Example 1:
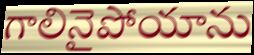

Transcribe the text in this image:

గాలినైపోయాను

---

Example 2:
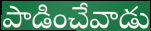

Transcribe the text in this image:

పాడించేవాడు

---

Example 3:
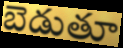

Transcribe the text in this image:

బెడుతూ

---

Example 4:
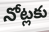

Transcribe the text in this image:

నోట్లకు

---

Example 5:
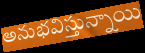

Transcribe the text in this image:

అనుభవిస్తున్నాయి